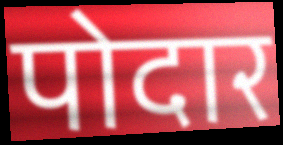
पोदार